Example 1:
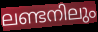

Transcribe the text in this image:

ലണ്ടനിലും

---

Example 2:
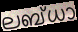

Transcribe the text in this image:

ലബ്ധാ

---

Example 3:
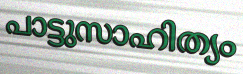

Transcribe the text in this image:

പാട്ടുസാഹിത്യം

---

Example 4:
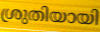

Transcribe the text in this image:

ശ്രുതിയായി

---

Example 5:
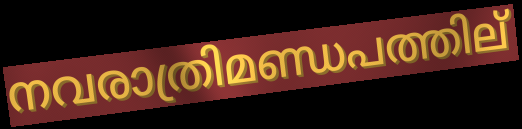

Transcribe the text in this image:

നവരാത്രിമണ്ഡപത്തില്